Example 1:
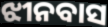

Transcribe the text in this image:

ଝୀନବାସ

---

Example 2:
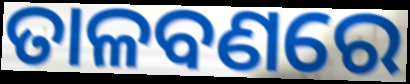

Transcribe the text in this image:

ତାଳବଣରେ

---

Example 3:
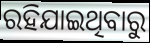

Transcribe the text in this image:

ରହିଯାଇଥିବାରୁ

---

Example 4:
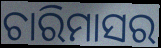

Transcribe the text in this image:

ଚାରିମାସର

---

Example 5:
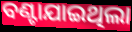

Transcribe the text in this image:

ବଣ୍ଟାଯାଇଥିଲା